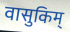
वासुकिम्